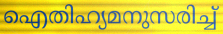
ഐതിഹ്യമനുസരിച്ച്